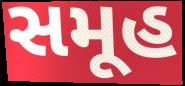
સમૂહ